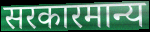
सरकारमान्य